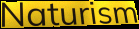
Naturism